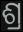
ଶ୍ର